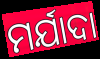
ମର୍ଯାଦା